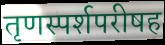
तृणस्पर्शपरीषह